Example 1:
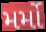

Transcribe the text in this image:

મર્મો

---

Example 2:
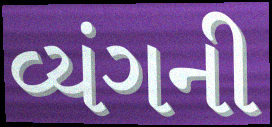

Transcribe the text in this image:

વ્યંગની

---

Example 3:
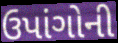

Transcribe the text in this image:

ઉપાંગોની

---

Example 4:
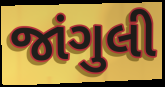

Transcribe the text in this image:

જાંગુલી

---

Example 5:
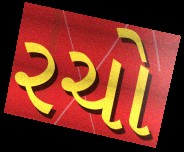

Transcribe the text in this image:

રચો